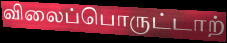
விலைப்பொருட்டாற்